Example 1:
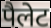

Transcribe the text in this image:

पैलेट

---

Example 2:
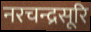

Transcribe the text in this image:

नरचन्द्रसूरि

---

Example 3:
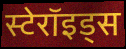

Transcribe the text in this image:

स्टेरॉइड्स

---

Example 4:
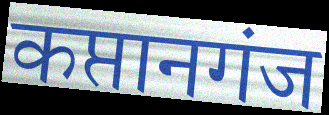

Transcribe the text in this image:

कप्तानगंज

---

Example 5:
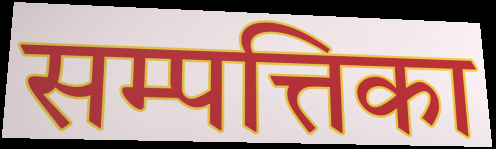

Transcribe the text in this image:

सम्पत्तिका